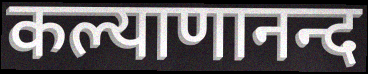
कल्याणानन्द